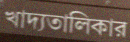
খাদ্যতালিকার